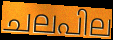
ചലപില